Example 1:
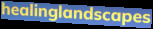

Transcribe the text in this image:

healinglandscapes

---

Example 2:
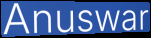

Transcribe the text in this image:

Anuswar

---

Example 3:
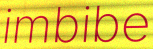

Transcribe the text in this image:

imbibe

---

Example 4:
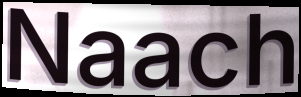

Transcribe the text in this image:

Naach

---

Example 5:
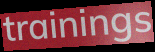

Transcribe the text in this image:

trainings